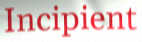
Incipient